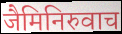
जैमिनिरुवाच